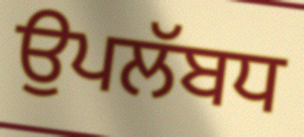
ਉਪਲੱਬਧ